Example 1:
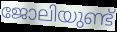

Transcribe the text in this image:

ജോലിയുണ്ട്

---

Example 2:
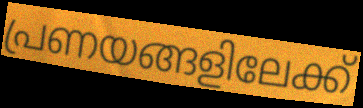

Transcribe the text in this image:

പ്രണയങ്ങളിലേക്ക്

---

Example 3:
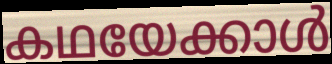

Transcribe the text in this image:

കഥയേക്കാൾ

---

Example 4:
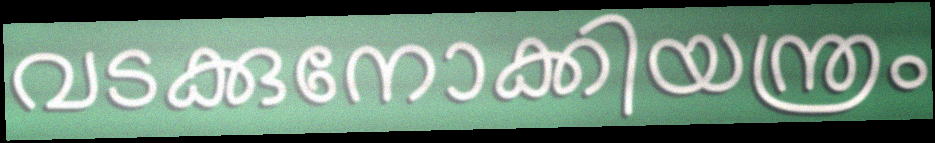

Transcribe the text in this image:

വടക്കുനോക്കിയന്ത്രം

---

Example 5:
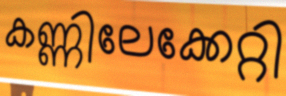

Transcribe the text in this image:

കണ്ണിലേക്കേറ്റി